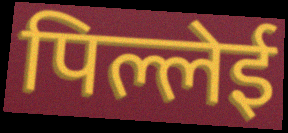
पिल्लेई